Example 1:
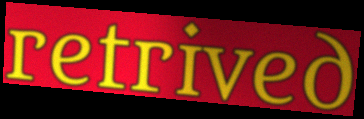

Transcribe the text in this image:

retrived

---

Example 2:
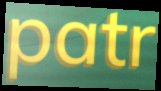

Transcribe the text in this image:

patr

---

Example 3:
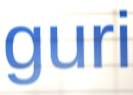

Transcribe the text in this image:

guri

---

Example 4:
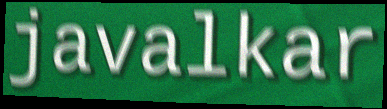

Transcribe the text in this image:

javalkar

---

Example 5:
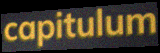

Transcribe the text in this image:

capitulum